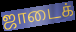
ஜாடைக்